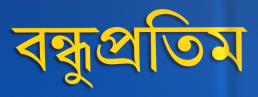
বন্ধুপ্রতিম